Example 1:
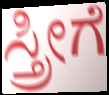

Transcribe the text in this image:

ಸ್ತ್ರೀಗೆ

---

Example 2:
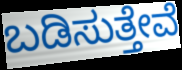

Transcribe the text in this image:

ಬಡಿಸುತ್ತೇವೆ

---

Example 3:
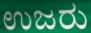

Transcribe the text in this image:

ಉಜರು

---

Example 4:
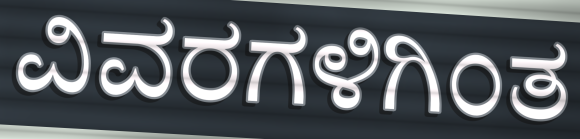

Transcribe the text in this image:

ವಿವರಗಳಿಗಿಂತ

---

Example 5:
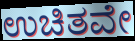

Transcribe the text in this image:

ಉಚಿತವೇ